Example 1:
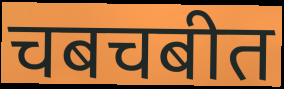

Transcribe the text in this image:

चबचबीत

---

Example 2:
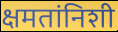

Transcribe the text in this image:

क्षमतांनिशी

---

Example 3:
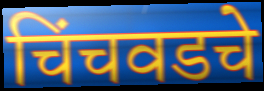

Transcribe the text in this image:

चिंचवडचे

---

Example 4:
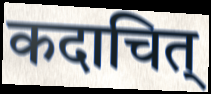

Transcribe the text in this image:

कदाचित्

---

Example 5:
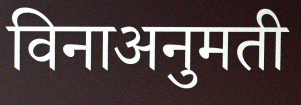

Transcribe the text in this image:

विनाअनुमती